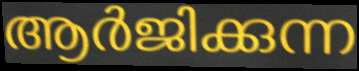
ആർജിക്കുന്ന